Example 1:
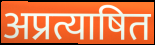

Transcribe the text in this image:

अप्रत्याषित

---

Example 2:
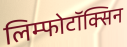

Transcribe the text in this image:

लिम्फोटॉक्सिन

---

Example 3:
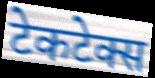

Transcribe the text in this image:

टेकटेक्स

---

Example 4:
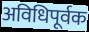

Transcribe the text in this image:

अविधिपूर्वक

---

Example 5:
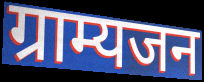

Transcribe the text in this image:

ग्राम्यजन